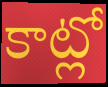
కాట్లో